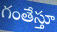
గంతేస్తూ